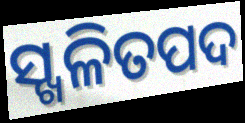
ସ୍ଖଳିତପଦ